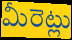
మీరెట్లు